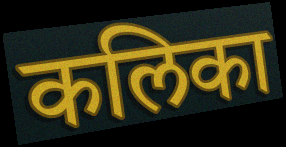
कलिका